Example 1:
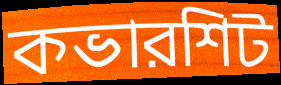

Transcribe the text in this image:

কভারশিট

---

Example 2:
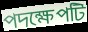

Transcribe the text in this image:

পদক্ষেপটি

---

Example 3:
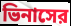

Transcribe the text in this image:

ভিনাসের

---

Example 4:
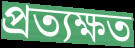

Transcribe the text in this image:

প্রত্যক্ষত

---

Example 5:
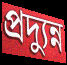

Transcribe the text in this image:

প্রদ্যুন্ন